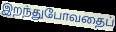
இறந்துபோவதைப்